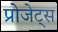
प्रोजेट्स